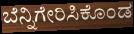
ಬೆನ್ನಿಗೇರಿಸಿಕೊಂಡ